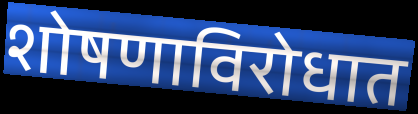
शोषणाविरोधात